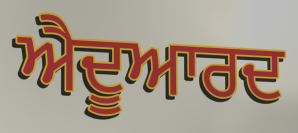
ਐਦੂਆਰਦ